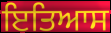
ਇਤਿਆਸ